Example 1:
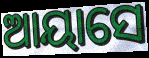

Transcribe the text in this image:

ଆୟାସେ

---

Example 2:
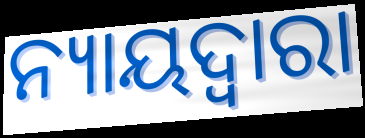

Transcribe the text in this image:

ନ୍ୟାୟଦ୍ୱାରା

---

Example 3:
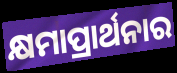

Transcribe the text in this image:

କ୍ଷମାପ୍ରାର୍ଥନାର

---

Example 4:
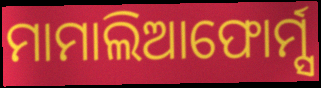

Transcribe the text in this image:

ମାମାଲିଆଫୋର୍ମ୍ସ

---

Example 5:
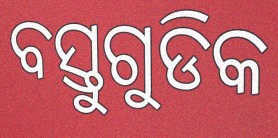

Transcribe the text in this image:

ବସ୍ତୁଗୁଡିକ